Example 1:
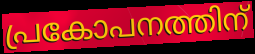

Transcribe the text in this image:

പ്രകോപനത്തിന്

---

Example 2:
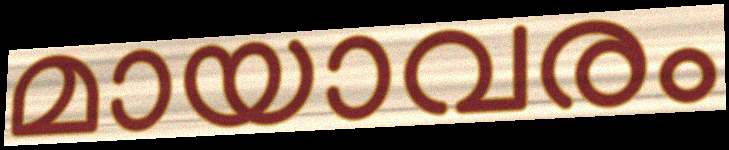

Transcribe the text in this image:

മായാവരം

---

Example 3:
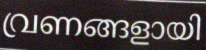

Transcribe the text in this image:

വ്രണങ്ങളായി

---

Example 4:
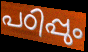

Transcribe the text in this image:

പഠിപ്പും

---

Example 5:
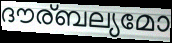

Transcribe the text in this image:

ദൗര്ബല്യമോ